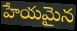
హేయమైన